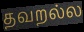
தவறல்ல